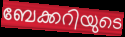
ബേക്കറിയുടെ